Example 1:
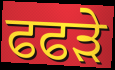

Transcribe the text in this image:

ਫਫਡ਼ੇ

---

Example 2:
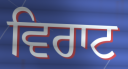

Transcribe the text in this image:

ਵਿਰਾਟ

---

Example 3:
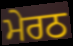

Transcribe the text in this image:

ਮੇਰਠ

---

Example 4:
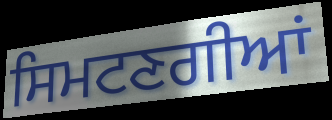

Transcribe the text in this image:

ਸਿਮਟਣਗੀਆਂ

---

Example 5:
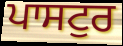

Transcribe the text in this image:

ਪਾਸਟੁਰ